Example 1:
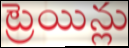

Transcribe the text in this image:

ట్రెయిన్లు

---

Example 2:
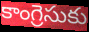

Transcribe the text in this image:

కాంగ్రెసుకు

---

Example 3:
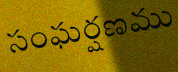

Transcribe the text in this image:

సంఘర్షణము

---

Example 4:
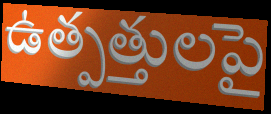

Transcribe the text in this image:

ఉత్పత్తులపై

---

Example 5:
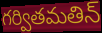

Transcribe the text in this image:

గర్వితమతిన్